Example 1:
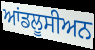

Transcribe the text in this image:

ਆਂਡਲੂਸੀਅਨ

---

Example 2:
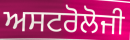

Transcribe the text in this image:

ਅਸਟਰੋਲੋਜੀ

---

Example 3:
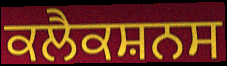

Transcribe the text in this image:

ਕਲੈਕਸ਼ਨਸ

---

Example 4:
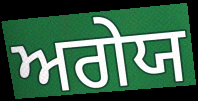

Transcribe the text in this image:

ਅਗੇਯ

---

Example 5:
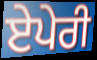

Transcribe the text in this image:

ਏਪੇਰੀ